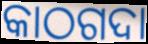
କାଠଗଦା